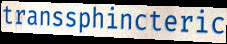
transsphincteric